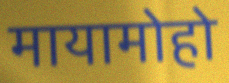
मायामोहो